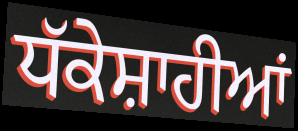
ਧੱਕੇਸ਼ਾਹੀਆਂ